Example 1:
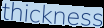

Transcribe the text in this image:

thickness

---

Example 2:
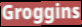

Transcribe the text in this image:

Groggins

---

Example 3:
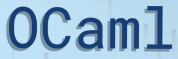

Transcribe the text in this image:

OCaml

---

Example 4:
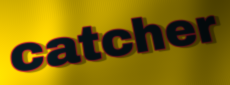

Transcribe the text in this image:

catcher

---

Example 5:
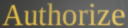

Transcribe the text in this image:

Authorize